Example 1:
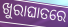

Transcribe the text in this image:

ଖୁରାଘାତରେ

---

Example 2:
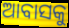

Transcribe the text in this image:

ଆବାସକୁ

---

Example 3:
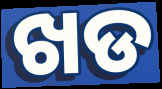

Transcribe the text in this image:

ଖଡ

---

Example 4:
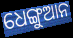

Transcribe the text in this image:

ଧେଙ୍ଗୁଆନ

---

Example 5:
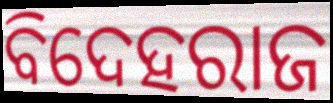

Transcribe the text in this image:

ବିଦେହରାଜ